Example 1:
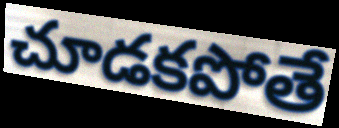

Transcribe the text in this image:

చూడకపోతే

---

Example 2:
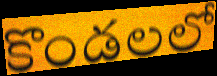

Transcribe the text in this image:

కొండలలో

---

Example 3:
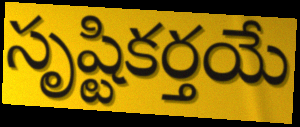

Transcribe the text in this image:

సృష్టికర్తయే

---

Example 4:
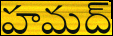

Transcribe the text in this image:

హమద్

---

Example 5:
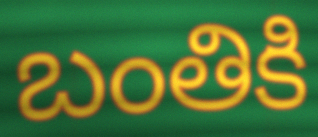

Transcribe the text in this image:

బంతికి